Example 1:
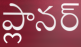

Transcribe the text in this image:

ప్లానర్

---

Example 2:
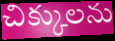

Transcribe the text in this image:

చిక్కులను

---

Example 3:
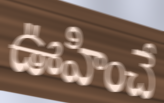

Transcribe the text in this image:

ఊహించే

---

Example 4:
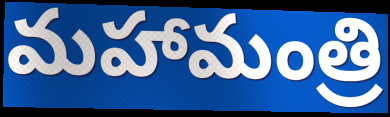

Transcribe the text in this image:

మహామంత్రి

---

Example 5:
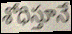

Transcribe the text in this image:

శోధిస్తూనే